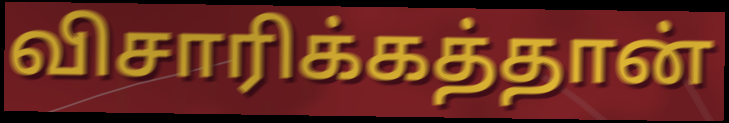
விசாரிக்கத்தான்